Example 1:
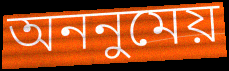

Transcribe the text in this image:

অননুমেয়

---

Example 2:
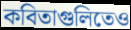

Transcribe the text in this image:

কবিতাগুলিতেও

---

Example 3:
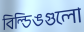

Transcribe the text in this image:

বিল্ডিঙগুলো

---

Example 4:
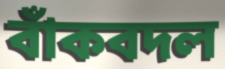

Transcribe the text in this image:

বাঁকবদল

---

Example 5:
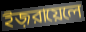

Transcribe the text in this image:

ইজ়রায়েলে